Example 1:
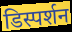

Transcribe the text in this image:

डिस्पर्शन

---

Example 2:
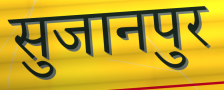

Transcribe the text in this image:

सुजानपुर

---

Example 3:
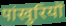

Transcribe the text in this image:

पांखुरियों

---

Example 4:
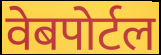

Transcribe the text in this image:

वेबपोर्टल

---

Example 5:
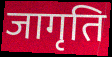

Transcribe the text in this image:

जागृति